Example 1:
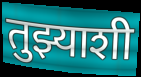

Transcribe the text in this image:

तुझ्याशी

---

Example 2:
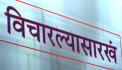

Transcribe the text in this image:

विचारल्यासारखं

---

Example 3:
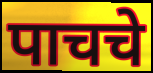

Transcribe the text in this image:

पाचचे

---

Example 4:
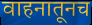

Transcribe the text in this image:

वाहनातूनच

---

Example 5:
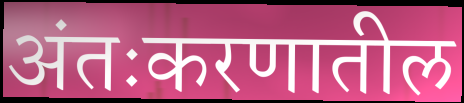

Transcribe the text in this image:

अंतःकरणातील